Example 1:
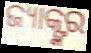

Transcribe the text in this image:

ଜ୍ୟାକ୍ଙ୍କର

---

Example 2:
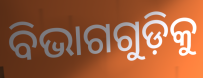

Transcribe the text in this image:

ବିଭାଗଗୁଡ଼ିକୁ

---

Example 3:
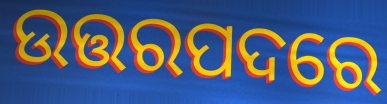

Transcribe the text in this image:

ଉତ୍ତରପଦରେ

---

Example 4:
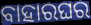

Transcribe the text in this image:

ବାହାରଘର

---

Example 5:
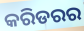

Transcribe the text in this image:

କରିଡରର